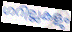
ഗറില്ലകളും